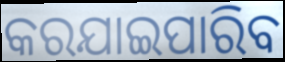
କରଯାଇପାରିବ